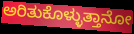
ಅರಿತುಕೊಳ್ಳುತ್ತಾನೋ